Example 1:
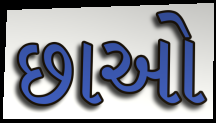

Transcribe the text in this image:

છાઓ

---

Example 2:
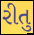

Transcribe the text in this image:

રીતુ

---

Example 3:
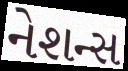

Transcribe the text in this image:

નેશન્સ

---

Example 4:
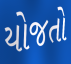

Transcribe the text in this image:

યોજતો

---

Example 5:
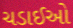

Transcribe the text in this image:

ચડાઈઓ